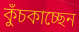
কুঁচকাচ্ছেন